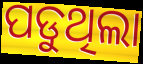
ପଡୁଥିଲା